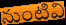
నుంటివి